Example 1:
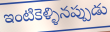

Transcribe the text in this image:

ఇంటికెళ్ళినప్పుడు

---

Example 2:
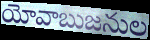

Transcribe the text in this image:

యోవాబుజనుల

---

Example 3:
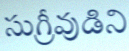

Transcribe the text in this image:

సుగ్రీవుడిని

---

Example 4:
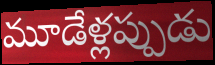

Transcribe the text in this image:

మూడేళ్లప్పుడు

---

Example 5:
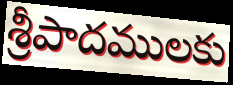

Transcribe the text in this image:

శ్రీపాదములకు